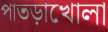
পাতড়াখোলা